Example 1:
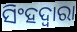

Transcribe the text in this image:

ସିଂହଦ୍ୱାରା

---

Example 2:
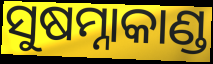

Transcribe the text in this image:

ସୁଷମ୍ନାକାଣ୍ଡ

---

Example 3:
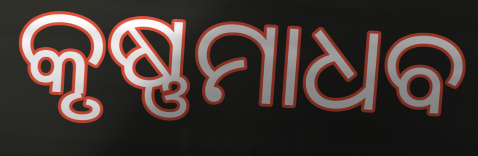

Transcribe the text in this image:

କୃଷ୍ଣମାଧବ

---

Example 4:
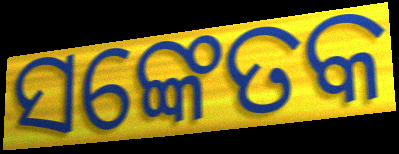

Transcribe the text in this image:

ସଙ୍କେତକ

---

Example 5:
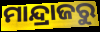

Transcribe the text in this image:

ମାନ୍ଦ୍ରାଜରୁ